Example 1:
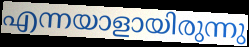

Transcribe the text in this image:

എന്നയാളായിരുന്നു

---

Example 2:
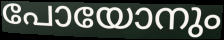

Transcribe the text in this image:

പോയോനും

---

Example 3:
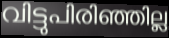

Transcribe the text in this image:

വിട്ടുപിരിഞ്ഞില്ല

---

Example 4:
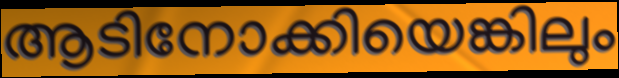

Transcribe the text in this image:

ആടിനോക്കിയെങ്കിലും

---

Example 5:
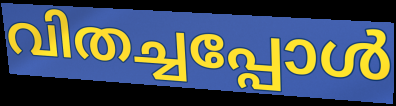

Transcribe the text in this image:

വിതച്ചപ്പോൾ